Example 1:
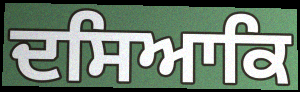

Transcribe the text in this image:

ਦਸਿਆਕਿ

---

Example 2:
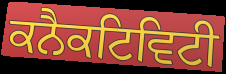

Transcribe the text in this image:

ਕਨੈਕਟਿਵਿਟੀ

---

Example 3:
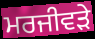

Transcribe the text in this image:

ਮਰਜੀਵੜੇ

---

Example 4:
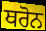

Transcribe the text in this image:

ਥਰੋਨ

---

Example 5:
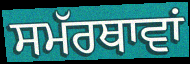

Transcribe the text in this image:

ਸਮੱਰਥਾਵਾਂ